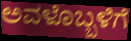
ಅವಳೊಬ್ಬಳಿಗೆ